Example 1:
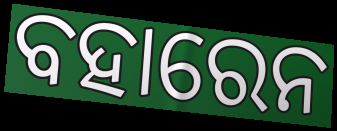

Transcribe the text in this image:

ବହାରେନ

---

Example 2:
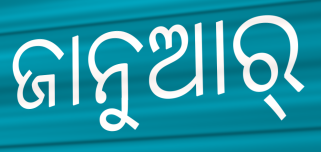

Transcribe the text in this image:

ଜାନୁଆର୍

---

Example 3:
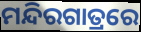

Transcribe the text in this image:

ମନ୍ଦିରଗାତ୍ରରେ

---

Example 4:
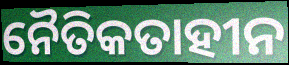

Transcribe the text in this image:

ନୈତିକତାହୀନ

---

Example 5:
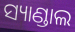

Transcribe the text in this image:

ସ୍ୟାଣ୍ଡାଲ